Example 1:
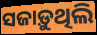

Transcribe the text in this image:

ସଜାଡ଼ୁଥିଲି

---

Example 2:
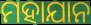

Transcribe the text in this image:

ମହାଯାନ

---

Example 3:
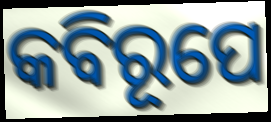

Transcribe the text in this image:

କବିରୂପେ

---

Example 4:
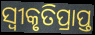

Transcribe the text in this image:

ସ୍ବୀକୃତିପ୍ରାପ୍ତ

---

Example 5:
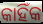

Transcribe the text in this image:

କାହିଁକ